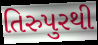
તિરુપુરથી